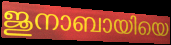
ജുനാബായിയെ